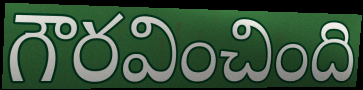
గౌరవించింది